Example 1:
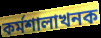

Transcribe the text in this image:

কৰ্মশালাখনক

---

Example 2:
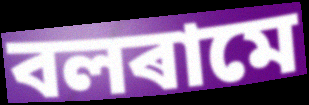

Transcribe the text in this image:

বলৰামে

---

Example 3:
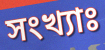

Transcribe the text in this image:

সংখ্যাঃ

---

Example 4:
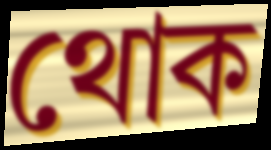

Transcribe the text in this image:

থোক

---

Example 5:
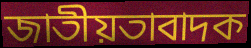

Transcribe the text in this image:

জাতীয়তাবাদক